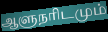
ஆளுநரிடமும்